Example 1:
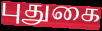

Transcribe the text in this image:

புதுகை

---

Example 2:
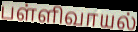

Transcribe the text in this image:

பள்ளிவாயல்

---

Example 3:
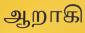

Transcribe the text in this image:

ஆறாகி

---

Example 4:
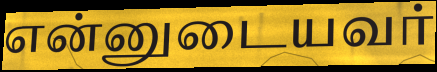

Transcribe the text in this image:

என்னுடையவர்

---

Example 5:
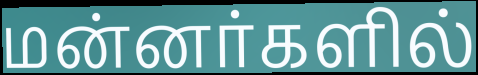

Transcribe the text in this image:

மன்னர்களில்